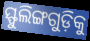
ସ୍ଫୁଲିଙ୍ଗଗୁଡ଼ିକୁ